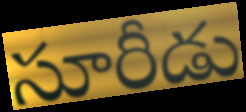
సూరీడు